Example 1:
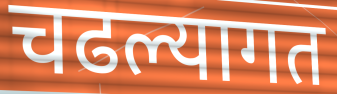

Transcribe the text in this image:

चढल्यागत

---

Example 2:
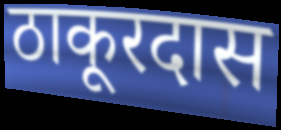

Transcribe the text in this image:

ठाकूरदास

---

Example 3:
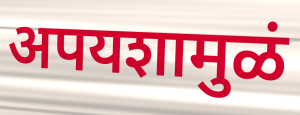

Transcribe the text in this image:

अपयशामुळं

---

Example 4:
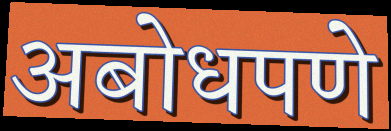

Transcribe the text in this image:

अबोधपणे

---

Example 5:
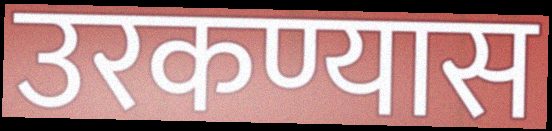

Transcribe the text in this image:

उरकण्यास